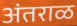
अंतराळ